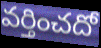
వర్తించదో